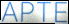
APTE